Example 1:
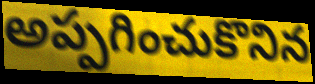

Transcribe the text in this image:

అప్పగించుకొనిన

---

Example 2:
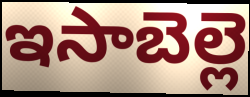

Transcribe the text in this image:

ఇసాబెల్లె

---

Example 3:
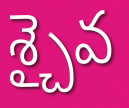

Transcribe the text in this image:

శ్చైవ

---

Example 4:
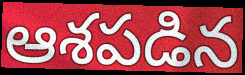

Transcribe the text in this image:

ఆశపడిన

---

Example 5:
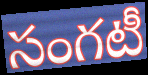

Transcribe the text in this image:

సంగటీ